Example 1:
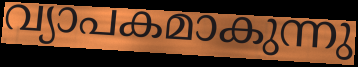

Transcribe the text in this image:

വ്യാപകമാകുന്നു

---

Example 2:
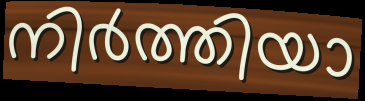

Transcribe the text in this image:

നിർത്തിയാ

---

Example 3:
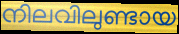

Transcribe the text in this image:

നിലവിലുണ്ടായ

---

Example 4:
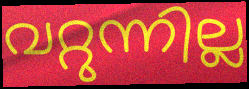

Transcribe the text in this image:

വറ്റുന്നില്ല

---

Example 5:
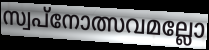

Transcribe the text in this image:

സ്വപ്നോത്സവമല്ലോ